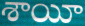
శాయీ